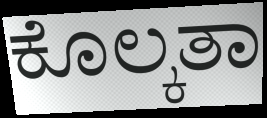
ಕೊಲ್ಕತಾ